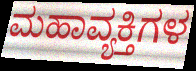
ಮಹಾವ್ಯಕ್ತಿಗಳ